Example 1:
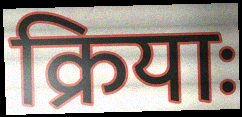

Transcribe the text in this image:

क्रियाः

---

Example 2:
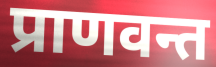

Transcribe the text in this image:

प्राणवन्त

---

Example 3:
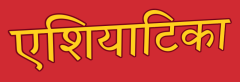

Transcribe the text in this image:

एशियाटिका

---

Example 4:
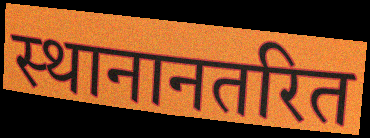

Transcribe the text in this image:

स्थानानतरित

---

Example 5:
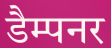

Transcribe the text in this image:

डैम्पनर